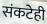
संकटेही